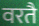
वरतै